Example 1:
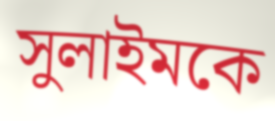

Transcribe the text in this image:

সুলাইমকে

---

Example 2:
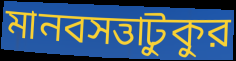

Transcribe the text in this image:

মানবসত্তাটুকুর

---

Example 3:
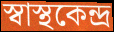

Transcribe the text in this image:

স্বাস্থকেন্দ্র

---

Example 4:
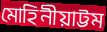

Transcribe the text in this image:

মোহিনীয়াট্টম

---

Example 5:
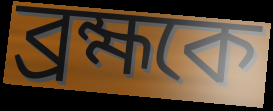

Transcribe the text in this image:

ব্রহ্মকে